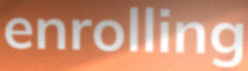
enrolling